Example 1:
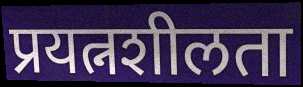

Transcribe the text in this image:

प्रयत्नशीलता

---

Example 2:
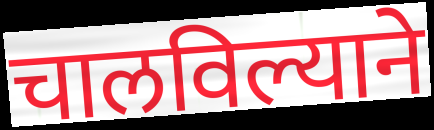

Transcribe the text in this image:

चालविल्याने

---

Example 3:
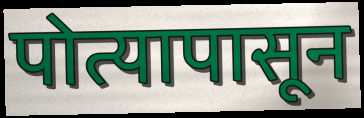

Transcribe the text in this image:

पोत्यापासून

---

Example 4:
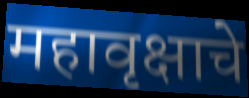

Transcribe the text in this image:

महावृक्षाचे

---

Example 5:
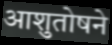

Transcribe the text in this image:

आशुतोषने